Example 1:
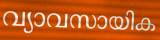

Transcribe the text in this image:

വ്യാവസായിക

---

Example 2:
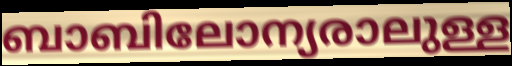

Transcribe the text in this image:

ബാബിലോന്യരാലുള്ള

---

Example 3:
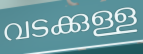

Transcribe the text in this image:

വടക്കുള്ള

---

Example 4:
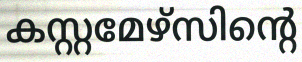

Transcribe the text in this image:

കസ്റ്റമേഴ്സിന്റെ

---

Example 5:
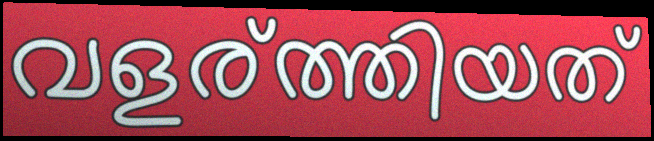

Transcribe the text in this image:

വളര്ത്തിയത്